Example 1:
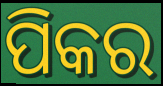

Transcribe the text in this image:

ପିକର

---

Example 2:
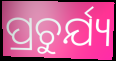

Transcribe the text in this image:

ପ୍ରଚୁର୍ଯ୍ୟ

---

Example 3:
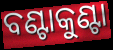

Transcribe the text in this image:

ବଣ୍ଟାକୁଣ୍ଟା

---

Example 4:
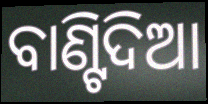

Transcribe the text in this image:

ବାଣ୍ଟିଦିଆ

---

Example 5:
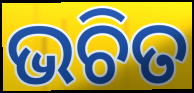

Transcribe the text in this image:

ଭଚିତ